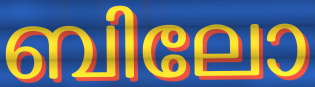
ബിലോ